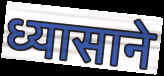
ध्यासाने